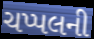
ચપ્પલની